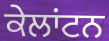
ਕੇਲਾਂਟਨ